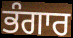
ਭੰਗਾਰ